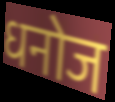
धनोज